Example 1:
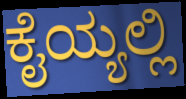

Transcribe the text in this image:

ಕೈಯ್ಯಲ್ಲಿ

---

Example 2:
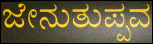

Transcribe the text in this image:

ಜೇನುತುಪ್ಪವ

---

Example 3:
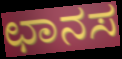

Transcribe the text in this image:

ಛಾನಸ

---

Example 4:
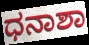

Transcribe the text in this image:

ಧನಾಶಾ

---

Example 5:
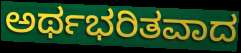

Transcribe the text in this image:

ಅರ್ಥಭರಿತವಾದ